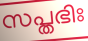
സപ്തഭിഃ